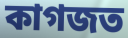
কাগজত